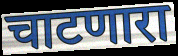
चाटणारा